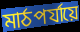
মাঠপর্যায়ে